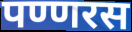
पण्णरस